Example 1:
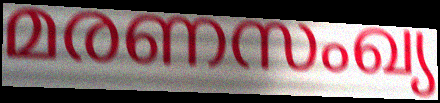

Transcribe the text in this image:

മരണസംഖ്യ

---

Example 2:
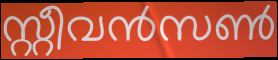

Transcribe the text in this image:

സ്റ്റീവൻസൺ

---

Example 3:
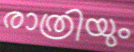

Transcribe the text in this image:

രാത്രിയും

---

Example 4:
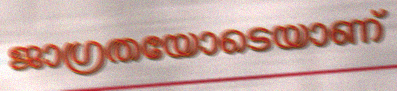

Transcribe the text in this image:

ജാഗ്രതയോടെയാണ്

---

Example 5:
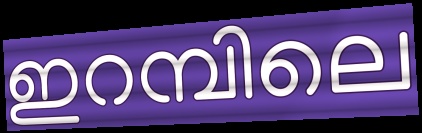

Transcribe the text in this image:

ഇറമ്പിലെ